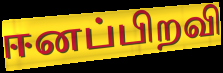
ஈனப்பிறவி